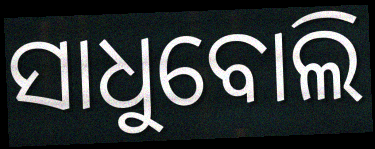
ସାଧୁବୋଲି